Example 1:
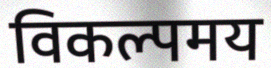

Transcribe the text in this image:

विकल्पमय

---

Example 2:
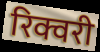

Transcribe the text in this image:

रिक्वरी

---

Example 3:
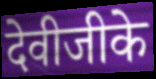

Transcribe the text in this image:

देवीजीके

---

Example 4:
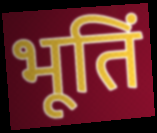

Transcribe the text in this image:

भूतिं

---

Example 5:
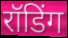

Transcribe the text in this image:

रॉडिंग